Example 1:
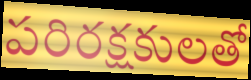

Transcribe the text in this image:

పరిరక్షకులతో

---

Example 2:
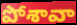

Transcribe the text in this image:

పోశావా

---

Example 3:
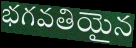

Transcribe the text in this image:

భగవతియైన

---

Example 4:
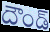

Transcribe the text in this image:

దౌండ్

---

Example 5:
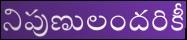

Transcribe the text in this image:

నిపుణులందరికీ